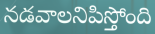
నడవాలనిపిస్తోంది